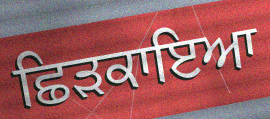
ਛਿੜਕਾਇਆ